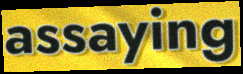
assaying